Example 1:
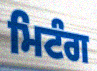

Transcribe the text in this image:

ਮਿਟੰਗ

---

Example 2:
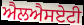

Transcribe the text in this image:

ਐਲਐਸਏਟੀ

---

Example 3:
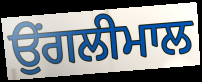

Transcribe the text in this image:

ਉਂਗਲੀਮਾਲ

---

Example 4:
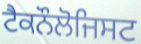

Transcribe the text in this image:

ਟੈਕਨੌਲੋਜਿਸਟ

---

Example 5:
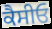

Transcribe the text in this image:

ਕੈਸੀਓ